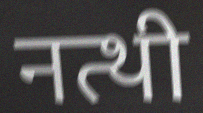
नत्थी